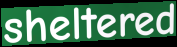
sheltered